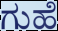
ಗುಹೆ